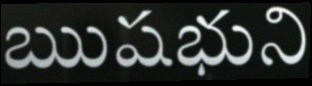
ఋషభుని